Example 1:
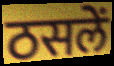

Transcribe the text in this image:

ठसलें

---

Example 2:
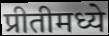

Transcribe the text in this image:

प्रीतीमध्ये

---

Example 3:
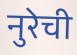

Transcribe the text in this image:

नुरेची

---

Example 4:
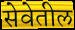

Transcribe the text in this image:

सेवेतील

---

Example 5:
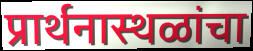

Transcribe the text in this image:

प्रार्थनास्थळांचा